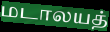
மடாலயத்